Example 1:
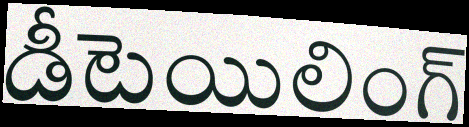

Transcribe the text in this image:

డీటెయిలింగ్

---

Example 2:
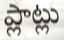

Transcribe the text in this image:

ప్లాట్లు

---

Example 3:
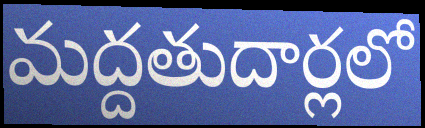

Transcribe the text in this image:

మద్దతుదార్లలో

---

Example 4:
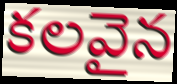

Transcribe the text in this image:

కలవైన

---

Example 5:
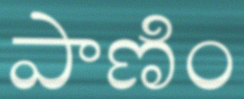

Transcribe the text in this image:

పాణిం